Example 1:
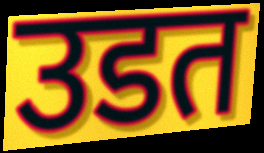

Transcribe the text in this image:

उडत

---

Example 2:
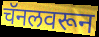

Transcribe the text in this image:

चॅनलवरून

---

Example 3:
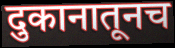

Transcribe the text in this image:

दुकानातूनच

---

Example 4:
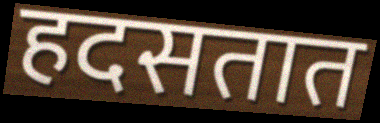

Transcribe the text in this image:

हदसतात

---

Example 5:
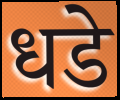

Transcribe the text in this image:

धडे